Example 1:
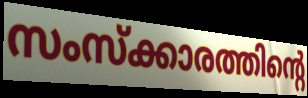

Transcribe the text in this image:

സംസ്ക്കാരത്തിന്റെ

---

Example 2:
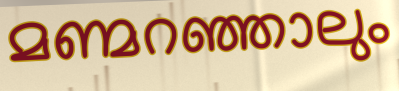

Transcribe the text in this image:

മണ്മറഞ്ഞാലും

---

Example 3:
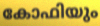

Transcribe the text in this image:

കോഫിയും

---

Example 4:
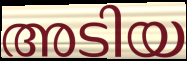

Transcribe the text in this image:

അടിയ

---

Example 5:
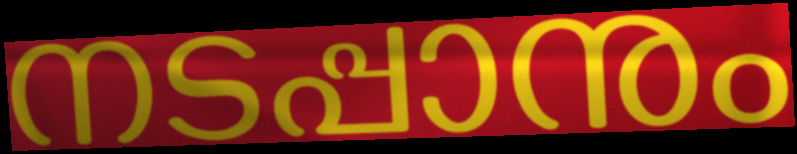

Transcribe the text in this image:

നടപ്പാനും